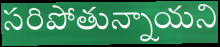
సరిపోతున్నాయని